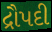
દ્રૌપદી